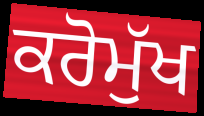
ਕਰੋਮੁੱਖ